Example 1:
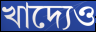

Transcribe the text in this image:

খাদ্যেও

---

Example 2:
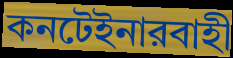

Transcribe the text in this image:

কনটেইনারবাহী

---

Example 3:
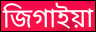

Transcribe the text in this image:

জিগাইয়া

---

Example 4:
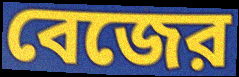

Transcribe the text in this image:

বেজের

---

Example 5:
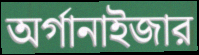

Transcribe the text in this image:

অর্গানাইজার